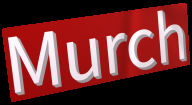
Murch